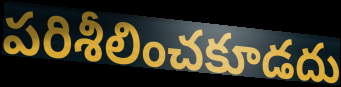
పరిశీలించకూడదు